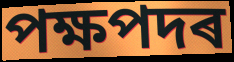
পক্ষপদৰ